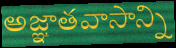
అజ్ఞాతవాసాన్ని